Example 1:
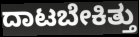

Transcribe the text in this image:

ದಾಟಬೇಕಿತ್ತು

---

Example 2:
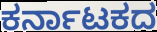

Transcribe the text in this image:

ಕರ್ನಾಟಕದ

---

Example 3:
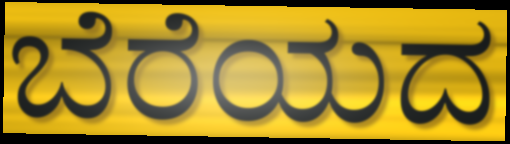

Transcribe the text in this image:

ಬೆರೆಯದ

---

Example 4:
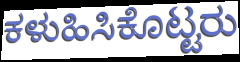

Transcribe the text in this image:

ಕಳುಹಿಸಿಕೊಟ್ಟರು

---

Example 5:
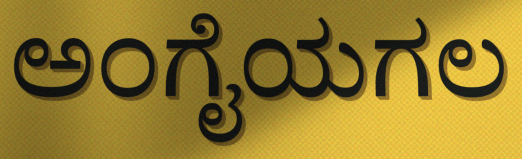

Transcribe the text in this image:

ಅಂಗೈಯಗಲ